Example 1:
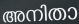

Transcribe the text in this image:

അനിതാ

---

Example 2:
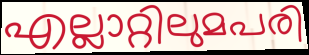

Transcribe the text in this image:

എല്ലാറ്റിലുമപരി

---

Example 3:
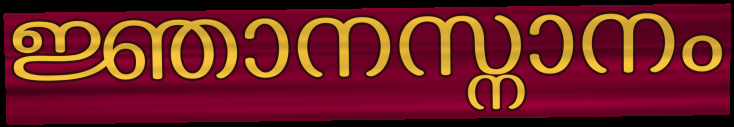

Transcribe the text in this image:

ജ്ഞാനസ്നാനം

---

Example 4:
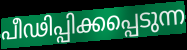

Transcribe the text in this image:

പീഢിപ്പിക്കപ്പെടുന്ന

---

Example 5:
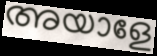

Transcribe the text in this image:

അയാളേ